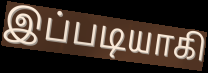
இப்படியாகி